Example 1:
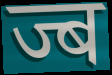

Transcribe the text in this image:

ज्ब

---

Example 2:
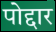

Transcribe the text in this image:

पोद्दार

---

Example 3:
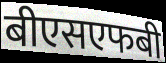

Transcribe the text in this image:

बीएसएफबी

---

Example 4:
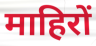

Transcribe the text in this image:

माहिरों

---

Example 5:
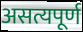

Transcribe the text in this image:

असत्यपूर्ण